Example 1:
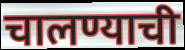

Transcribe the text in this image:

चालण्याची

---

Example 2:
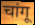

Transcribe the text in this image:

चांगू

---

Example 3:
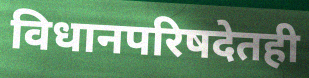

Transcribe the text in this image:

विधानपरिषदेतही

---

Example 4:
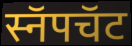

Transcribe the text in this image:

स्नॅपचॅट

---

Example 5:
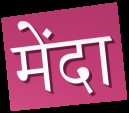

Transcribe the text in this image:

मेंदा